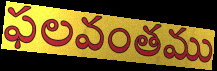
ఫలవంతము